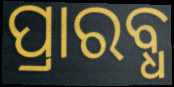
ପ୍ରାରବ୍ଧ